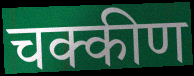
चक्कीण